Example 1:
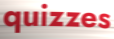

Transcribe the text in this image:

quizzes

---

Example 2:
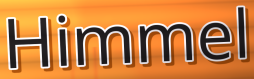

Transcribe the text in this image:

Himmel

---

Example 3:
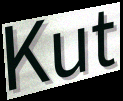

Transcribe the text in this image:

Kut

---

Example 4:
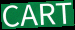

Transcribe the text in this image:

CART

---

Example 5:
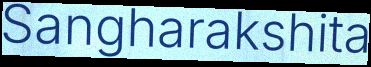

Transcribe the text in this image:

Sangharakshita